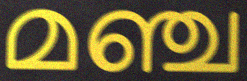
മഞ്ച